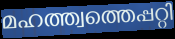
മഹത്ത്വത്തെപ്പറ്റി